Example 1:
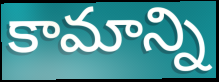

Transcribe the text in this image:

కామాన్ని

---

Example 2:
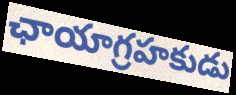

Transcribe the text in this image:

ఛాయాగ్రహకుడు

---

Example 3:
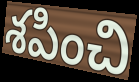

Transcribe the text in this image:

శపించి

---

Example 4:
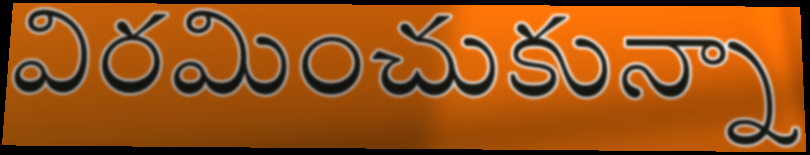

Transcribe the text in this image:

విరమించుకున్నా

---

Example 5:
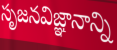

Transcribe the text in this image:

సృజనవిజ్ఞానాన్ని